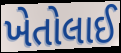
ખેતોલાઈ